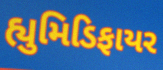
હ્યુમિડિફાયર